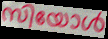
സിയോൾ